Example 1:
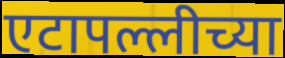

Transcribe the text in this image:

एटापल्लीच्या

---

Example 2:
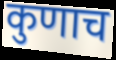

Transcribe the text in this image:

कुणाच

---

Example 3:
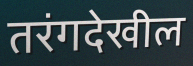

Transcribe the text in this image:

तरंगदेखील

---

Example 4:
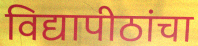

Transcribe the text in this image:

विद्यापीठांचा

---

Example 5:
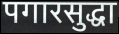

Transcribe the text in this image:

पगारसुद्धा